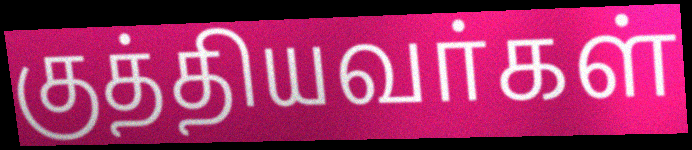
குத்தியவர்கள்